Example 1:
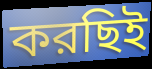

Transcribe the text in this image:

করছিই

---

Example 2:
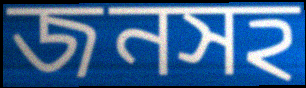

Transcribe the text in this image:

জনসহ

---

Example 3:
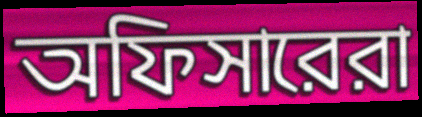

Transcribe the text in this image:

অফিসারেরা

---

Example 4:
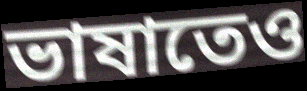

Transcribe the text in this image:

ভাষাতেও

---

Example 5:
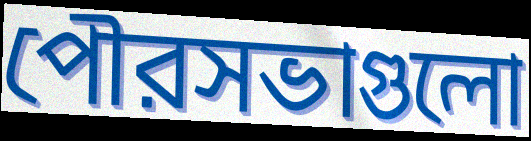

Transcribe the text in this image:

পৌরসভাগুলো